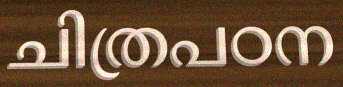
ചിത്രപഠന